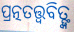
ପ୍ରତ୍ନତତ୍ତ୍ୱବିତ୍ଙ୍କ